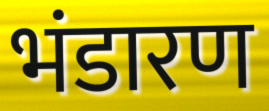
भंडारण